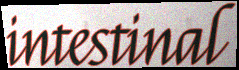
intestinal